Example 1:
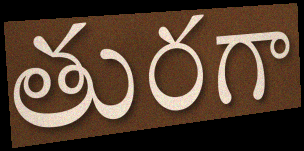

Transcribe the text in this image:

తురగా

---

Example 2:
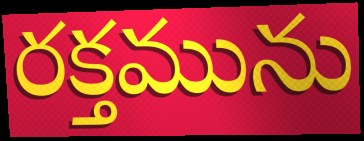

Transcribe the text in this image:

రక్తమును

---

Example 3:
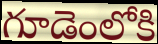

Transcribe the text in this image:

గూడెంలోకి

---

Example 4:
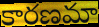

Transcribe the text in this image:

కారణమా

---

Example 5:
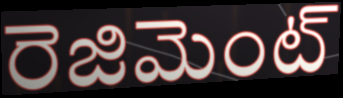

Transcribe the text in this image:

రెజిమెంట్